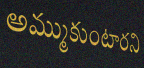
అమ్ముకుంటారని